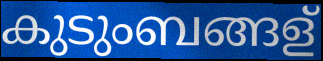
കുടുംബങ്ങള്